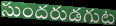
సుందరుడగుట